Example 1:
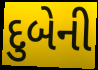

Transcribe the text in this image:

દુબેની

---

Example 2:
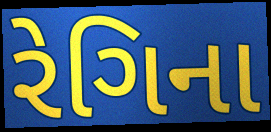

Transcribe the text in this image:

રેગિના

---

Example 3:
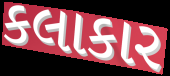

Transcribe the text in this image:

કલાકાર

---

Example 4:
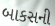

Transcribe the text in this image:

બાકસની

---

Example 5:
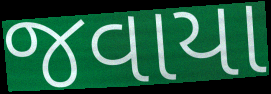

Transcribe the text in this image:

જવાયા